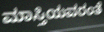
ಮಾಸ್ತಿಯವರಂತೆ